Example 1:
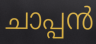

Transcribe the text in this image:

ചാപ്പൻ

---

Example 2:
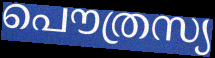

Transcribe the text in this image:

പൌത്രസ്യ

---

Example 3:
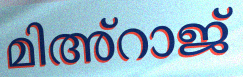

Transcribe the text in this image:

മിഅ്റാജ്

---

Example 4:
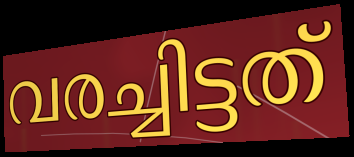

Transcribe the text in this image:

വരച്ചിട്ടത്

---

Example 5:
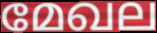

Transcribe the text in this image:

മേഖല